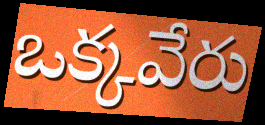
ఒక్కవేరు